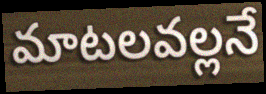
మాటలవల్లనే